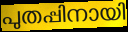
പുതപ്പിനായി